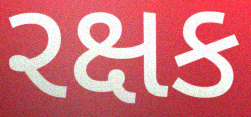
રક્ષક